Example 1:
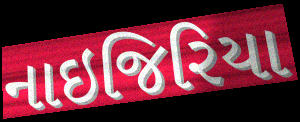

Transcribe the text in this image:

નાઇજિરિયા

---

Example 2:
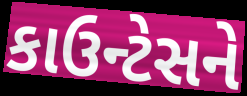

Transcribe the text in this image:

કાઉન્ટેસને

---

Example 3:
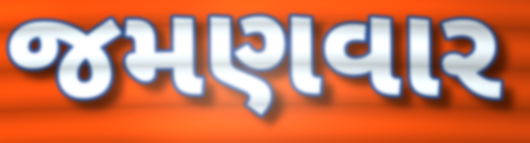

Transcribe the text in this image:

જમણવાર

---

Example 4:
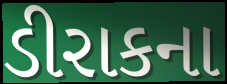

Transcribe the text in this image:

ડીરાકના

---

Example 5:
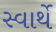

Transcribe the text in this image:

સ્વાર્થે